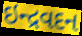
ઇન્દ્રવદન